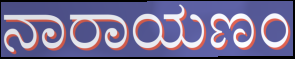
ನಾರಾಯಣಂ